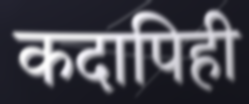
कदापिही